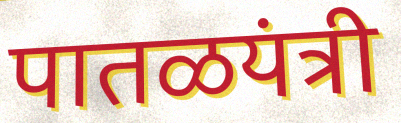
पातळयंत्री